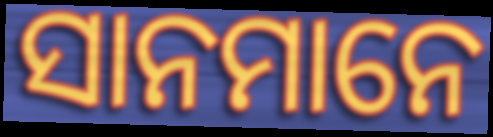
ସାନମାନେ